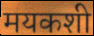
मयकशी